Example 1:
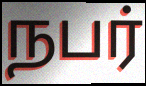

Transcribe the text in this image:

நபர்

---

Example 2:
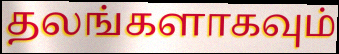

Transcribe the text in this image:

தலங்களாகவும்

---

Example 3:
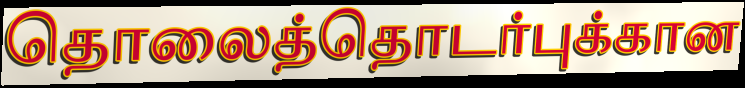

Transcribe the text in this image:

தொலைத்தொடர்புக்கான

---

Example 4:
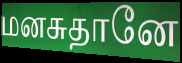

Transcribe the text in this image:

மனசுதானே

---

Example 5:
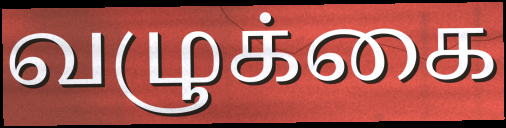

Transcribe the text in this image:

வழுக்கை